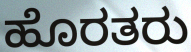
ಹೊರತರು